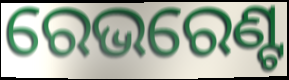
ରେଭରେଣ୍ଟ